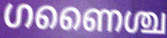
ഗണൈശ്ച